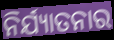
ନିର୍ଯ୍ୟାତନାର